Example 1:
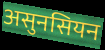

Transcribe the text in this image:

असुनसियन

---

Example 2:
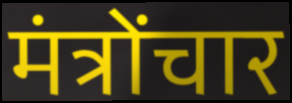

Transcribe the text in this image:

मंत्रोंचार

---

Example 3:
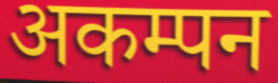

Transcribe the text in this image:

अकम्पन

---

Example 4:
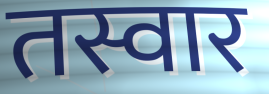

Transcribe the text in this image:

तस्वार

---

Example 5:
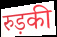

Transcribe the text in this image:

रुड़की